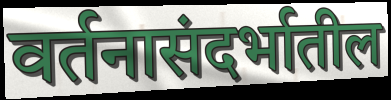
वर्तनासंदर्भातील